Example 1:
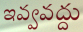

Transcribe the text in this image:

ఇవ్వవద్దు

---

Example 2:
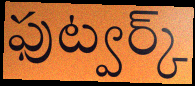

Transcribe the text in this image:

ఫుట్వర్క్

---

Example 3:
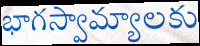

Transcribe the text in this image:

భాగస్వామ్యాలకు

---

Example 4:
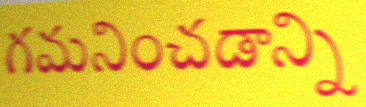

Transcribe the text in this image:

గమనించడాన్ని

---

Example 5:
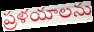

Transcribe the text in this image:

ప్రళయాలను